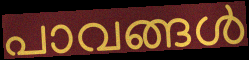
പാവങ്ങൾ